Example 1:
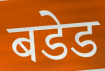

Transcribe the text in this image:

बडेड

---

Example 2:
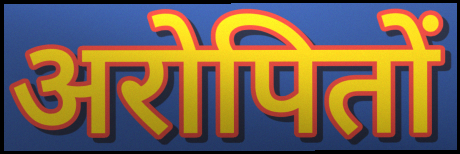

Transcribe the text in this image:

अरोपितों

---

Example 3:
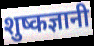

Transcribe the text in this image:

शुष्कज्ञानी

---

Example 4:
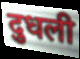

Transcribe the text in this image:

दुधली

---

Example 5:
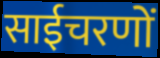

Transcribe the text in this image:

साईचरणों